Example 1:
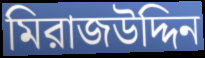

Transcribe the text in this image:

মিরাজউদ্দিন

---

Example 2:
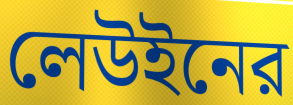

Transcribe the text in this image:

লেউইনের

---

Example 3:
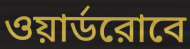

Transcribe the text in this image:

ওয়ার্ডরোবে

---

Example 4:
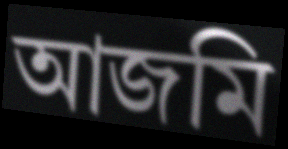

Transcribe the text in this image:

আজমি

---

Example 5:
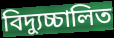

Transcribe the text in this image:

বিদ্যুচ্চালিত